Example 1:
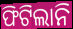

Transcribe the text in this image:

ଫିଟିଲାନି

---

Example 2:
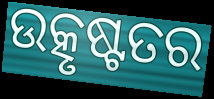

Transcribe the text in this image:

ଉତ୍କୃଷ୍ଟତର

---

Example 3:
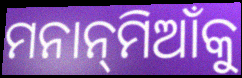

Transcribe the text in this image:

ମନାନ୍‌ମିଆଁକୁ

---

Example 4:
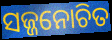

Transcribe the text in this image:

ସଜ୍ଜନୋଚିତ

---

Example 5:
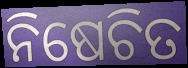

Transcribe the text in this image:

ନିଷେଚିତ